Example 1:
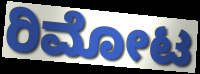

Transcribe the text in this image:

ರಿಮೋಟ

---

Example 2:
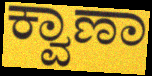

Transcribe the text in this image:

ಕ್ವಾಣಾ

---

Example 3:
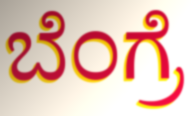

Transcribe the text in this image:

ಬೆಂಗ್ರೆ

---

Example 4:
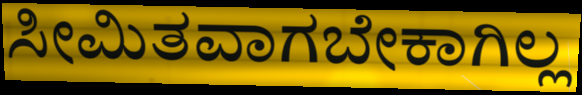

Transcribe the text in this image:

ಸೀಮಿತವಾಗಬೇಕಾಗಿಲ್ಲ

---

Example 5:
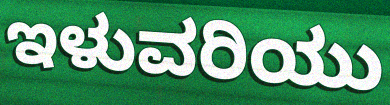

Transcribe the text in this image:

ಇಳುವರಿಯು